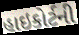
હાઇકોર્ટની